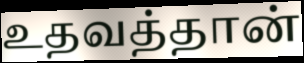
உதவத்தான்